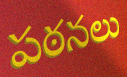
పఠనలు